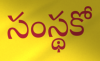
సంస్థకో